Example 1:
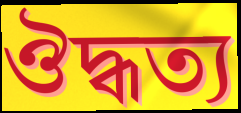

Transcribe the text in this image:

ঔদ্ধত্য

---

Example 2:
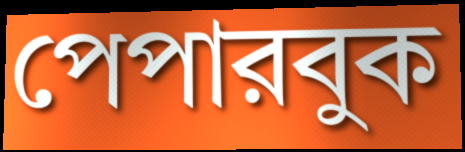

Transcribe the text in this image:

পেপারবুক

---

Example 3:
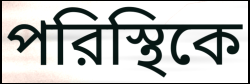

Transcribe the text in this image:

পরিস্থিকে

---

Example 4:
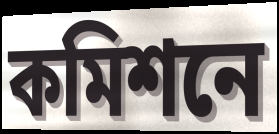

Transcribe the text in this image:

কমিশনে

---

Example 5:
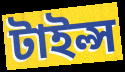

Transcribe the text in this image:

টাইল্স